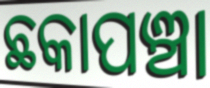
ଛକାପଞ୍ଚା